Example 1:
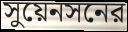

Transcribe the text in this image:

সুয়েনসনের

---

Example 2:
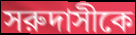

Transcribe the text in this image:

সরুদাসীকে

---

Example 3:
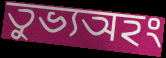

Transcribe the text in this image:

তুভ্যঅহং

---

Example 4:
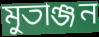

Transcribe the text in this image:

মুতাঞ্জন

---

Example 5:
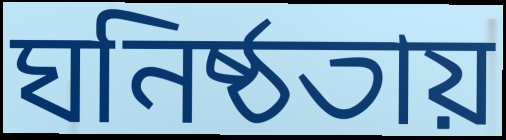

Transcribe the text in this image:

ঘনিষ্ঠতায়